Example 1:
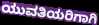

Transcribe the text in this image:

ಯುವತಿಯರಿಗಾಗಿ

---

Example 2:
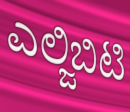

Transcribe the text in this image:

ಎಲ್ಜಿಬಿಟಿ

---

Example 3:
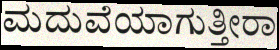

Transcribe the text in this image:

ಮದುವೆಯಾಗುತ್ತೀರಾ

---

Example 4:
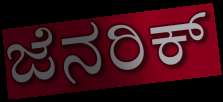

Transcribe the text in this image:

ಜೆನರಿಕ್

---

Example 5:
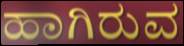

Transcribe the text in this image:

ಹಾಗಿರುವ